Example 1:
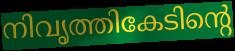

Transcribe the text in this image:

നിവൃത്തികേടിന്റെ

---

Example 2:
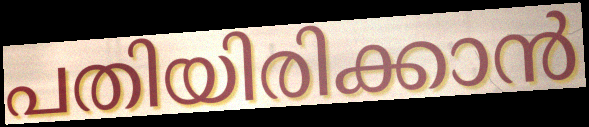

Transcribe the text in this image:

പതിയിരിക്കാൻ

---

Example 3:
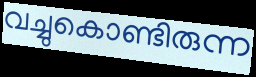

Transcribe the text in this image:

വച്ചുകൊണ്ടിരുന്ന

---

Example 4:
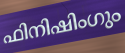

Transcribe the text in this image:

ഫിനിഷിംഗും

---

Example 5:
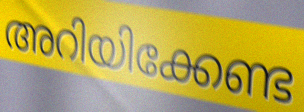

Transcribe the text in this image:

അറിയിക്കേണ്ട